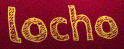
locho